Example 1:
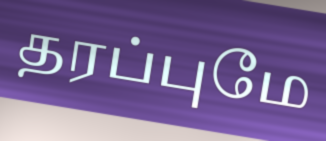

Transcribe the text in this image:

தரப்புமே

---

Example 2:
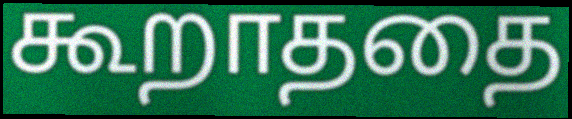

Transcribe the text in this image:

கூறாததை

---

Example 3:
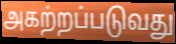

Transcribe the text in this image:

அகற்றப்படுவது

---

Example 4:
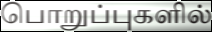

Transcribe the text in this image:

பொறுப்புகளில்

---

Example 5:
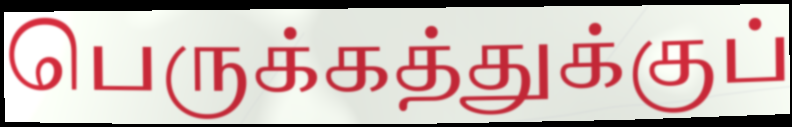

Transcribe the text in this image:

பெருக்கத்துக்குப்